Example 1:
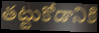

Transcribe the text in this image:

తట్టుకోడానికి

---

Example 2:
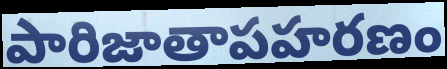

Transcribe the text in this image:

పారిజాతాపహరణం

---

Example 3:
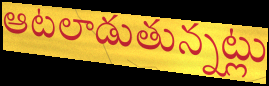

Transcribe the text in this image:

ఆటలాడుతున్నట్లు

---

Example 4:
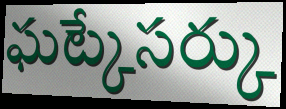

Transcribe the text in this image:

ఘట్కేసర్కు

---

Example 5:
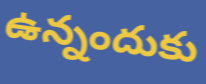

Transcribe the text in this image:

ఉన్నందుకు